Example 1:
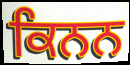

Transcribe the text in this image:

ਕਿਨਨ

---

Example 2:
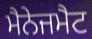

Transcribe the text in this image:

ਮੈਨੇਜਮੈਟ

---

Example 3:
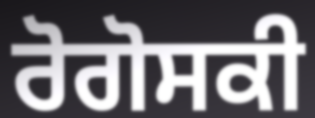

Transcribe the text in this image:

ਰੋਗੋਸਕੀ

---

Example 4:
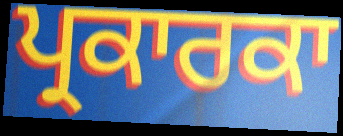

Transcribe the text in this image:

ਪ੍ਰਕਾਰਕਾ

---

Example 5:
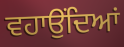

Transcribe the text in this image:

ਵਹਾਉਂਦਿਆਂ